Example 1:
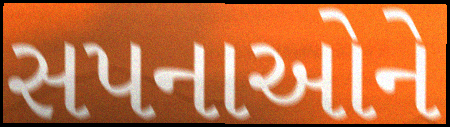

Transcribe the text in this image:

સપનાઓને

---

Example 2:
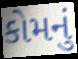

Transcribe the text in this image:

કોમનું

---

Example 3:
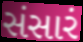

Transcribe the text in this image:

સંસારં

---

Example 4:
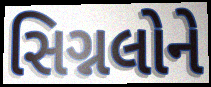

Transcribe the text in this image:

સિગ્નલોને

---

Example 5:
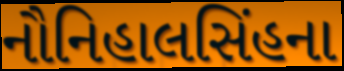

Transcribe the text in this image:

નૌનિહાલસિંહના